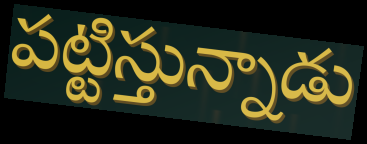
పట్టిస్తున్నాడు